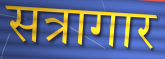
सत्रागार